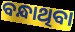
ବନ୍ଧାଥିବା